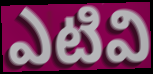
ఎటివి